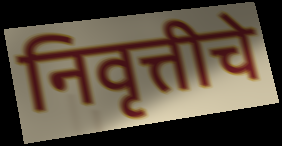
निवृत्तीचे